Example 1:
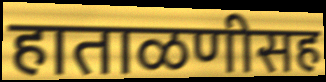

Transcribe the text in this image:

हाताळणीसह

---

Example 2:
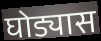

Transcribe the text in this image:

घोड्यास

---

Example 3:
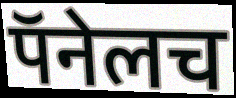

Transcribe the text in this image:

पॅनेलच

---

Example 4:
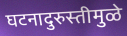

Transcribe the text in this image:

घटनादुरुस्तीमुळे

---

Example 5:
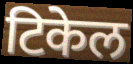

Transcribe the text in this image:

टिकेल